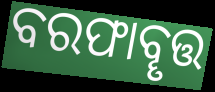
ବରଫାବୄତ୍ତ